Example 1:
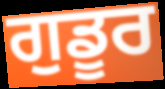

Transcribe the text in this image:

ਗੁਡੂਰ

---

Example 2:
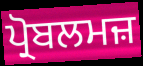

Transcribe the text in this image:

ਪ੍ਰੋਬਲਮਜ਼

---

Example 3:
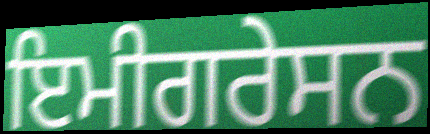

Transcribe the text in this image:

ਇਮੀਗਰੇਸਨ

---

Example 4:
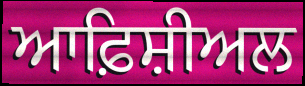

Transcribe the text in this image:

ਆਫ਼ਿਸ਼ੀਅਲ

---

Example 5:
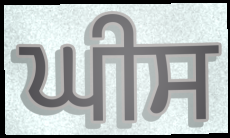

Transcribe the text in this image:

ਘੀਸ